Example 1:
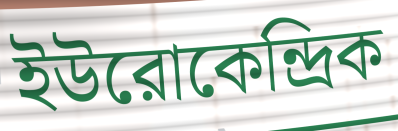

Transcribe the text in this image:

ইউরোকেন্দ্রিক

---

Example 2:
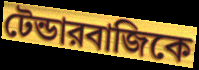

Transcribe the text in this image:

টেন্ডারবাজিকে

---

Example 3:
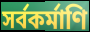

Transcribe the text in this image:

সর্বকর্মাণি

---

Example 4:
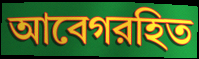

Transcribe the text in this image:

আবেগরহিত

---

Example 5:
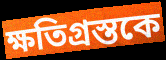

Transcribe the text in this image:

ক্ষতিগ্রস্তকে